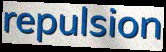
repulsion